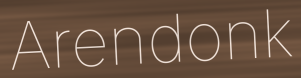
Arendonk